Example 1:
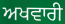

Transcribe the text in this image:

ਅਖਵਾਰੀ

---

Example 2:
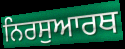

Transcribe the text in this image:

ਨਿਰਸੁਆਰਥ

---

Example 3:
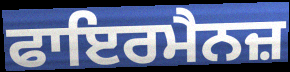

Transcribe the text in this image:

ਫਾਇਰਮੈਨਜ਼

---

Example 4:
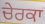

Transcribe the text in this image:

ਚੇਰਕਾ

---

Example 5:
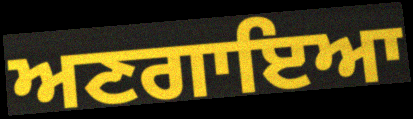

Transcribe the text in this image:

ਅਣਗਾਇਆ